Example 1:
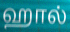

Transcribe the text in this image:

ஹால்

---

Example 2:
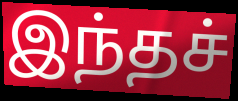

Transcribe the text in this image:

இந்தச்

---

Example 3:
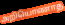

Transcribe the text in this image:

அறியொணாத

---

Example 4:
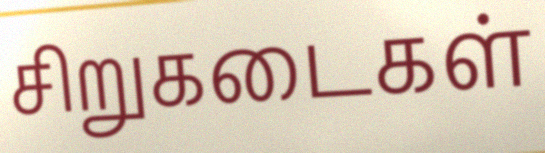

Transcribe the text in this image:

சிறுகடைகள்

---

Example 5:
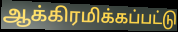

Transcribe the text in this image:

ஆக்கிரமிக்கப்பட்டு